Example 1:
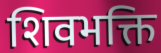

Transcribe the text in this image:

शिवभक्ति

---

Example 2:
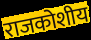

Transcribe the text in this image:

राजकोशीय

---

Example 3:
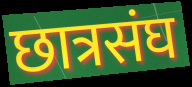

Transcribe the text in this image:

छात्रसंघ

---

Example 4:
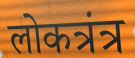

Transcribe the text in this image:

लोकत्रंत्र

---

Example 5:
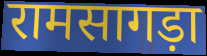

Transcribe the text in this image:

रामसागड़ा